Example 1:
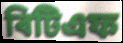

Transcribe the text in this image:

বিটিএফ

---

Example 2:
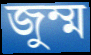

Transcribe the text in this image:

জুম্ম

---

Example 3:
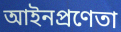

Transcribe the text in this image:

আইনপ্রণেতা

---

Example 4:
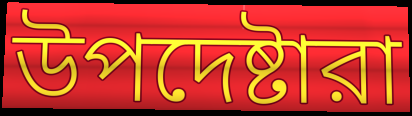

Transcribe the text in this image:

উপদেষ্টারা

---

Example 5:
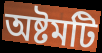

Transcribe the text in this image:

অষ্টমটি